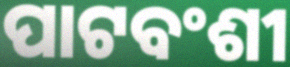
ପାଟବଂଶୀ